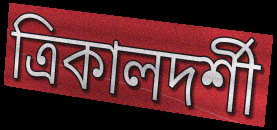
ত্রিকালদর্শী